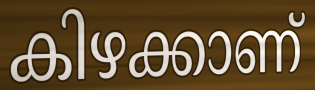
കിഴക്കാണ്